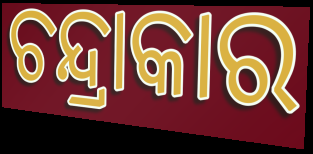
ଚନ୍ଦ୍ରାକାର